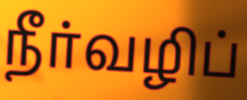
நீர்வழிப்